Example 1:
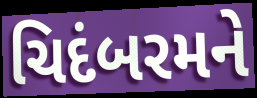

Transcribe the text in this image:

ચિદંબરમને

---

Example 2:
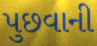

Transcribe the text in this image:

પુછવાની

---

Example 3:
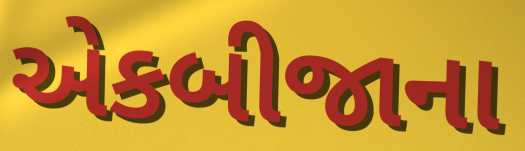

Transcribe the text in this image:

એકબીજાના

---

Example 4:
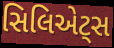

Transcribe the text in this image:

સિલિએટ્સ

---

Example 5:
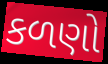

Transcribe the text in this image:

કળણો